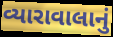
વ્યારાવાલાનું